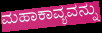
ಮಹಾಕಾವ್ಯವನ್ನು